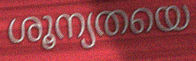
ശൂന്യതയെ